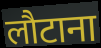
लौटाना